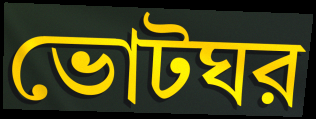
ভোটঘর